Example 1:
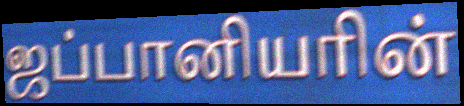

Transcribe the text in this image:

ஜப்பானியரின்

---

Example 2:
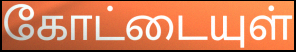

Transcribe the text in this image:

கோட்டையுள்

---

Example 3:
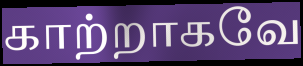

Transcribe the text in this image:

காற்றாகவே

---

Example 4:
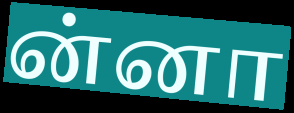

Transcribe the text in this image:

ன்னா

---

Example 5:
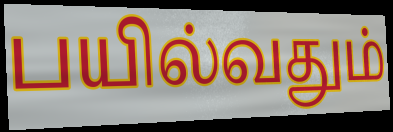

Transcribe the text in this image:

பயில்வதும்